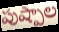
పుష్పాల